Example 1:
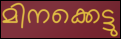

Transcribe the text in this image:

മിനക്കെട്ടു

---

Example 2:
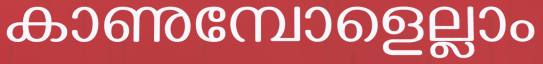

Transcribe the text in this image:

കാണുമ്പോളെല്ലാം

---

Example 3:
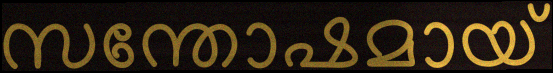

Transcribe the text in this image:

സന്തോഷമായ്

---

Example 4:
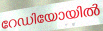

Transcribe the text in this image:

റേഡിയോയിൽ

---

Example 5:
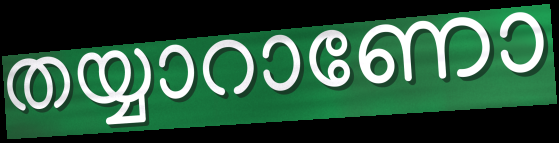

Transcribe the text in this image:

തയ്യാറാണോ